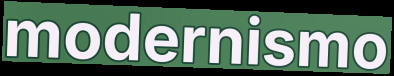
modernismo